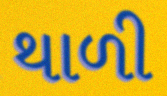
થાળી